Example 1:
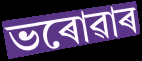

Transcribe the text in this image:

ভৰোৱাৰ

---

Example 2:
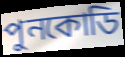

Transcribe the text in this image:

পুনকোডি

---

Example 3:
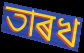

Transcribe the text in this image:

তাৰখ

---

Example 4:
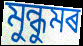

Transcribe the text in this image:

মুন্ধুমৰ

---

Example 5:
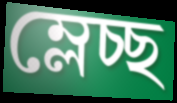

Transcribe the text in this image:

ম্লেচ্ছ